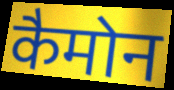
कैमोन